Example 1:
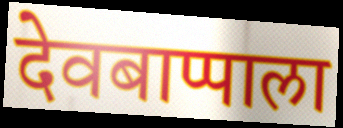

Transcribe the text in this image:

देवबाप्पाला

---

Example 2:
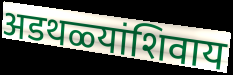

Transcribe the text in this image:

अडथळ्यांशिवाय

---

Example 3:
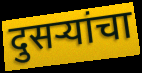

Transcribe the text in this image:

दुसऱ्यांचा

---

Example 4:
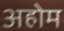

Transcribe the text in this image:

अहोम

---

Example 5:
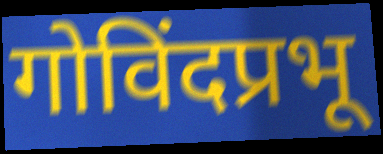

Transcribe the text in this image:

गोविंदप्रभू